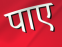
पाए